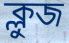
ক্লুজ